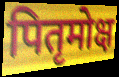
पितृमोक्ष